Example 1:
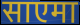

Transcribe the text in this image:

साएमा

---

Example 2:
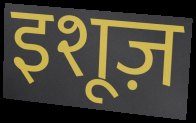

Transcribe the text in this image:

इशूज़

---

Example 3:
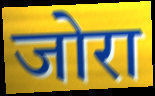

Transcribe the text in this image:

जोरा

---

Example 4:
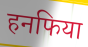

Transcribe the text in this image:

हनफिया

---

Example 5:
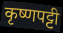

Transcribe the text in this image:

कृष्णपट्टी